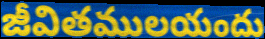
జీవితములయందు